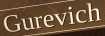
Gurevich